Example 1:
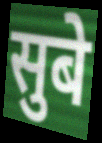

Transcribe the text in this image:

सुबे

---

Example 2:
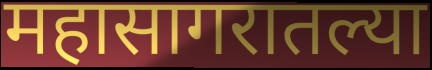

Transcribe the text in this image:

महासागरातल्या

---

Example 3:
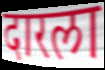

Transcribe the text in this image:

दारला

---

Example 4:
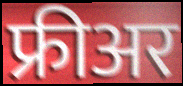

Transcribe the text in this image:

फ्रीअर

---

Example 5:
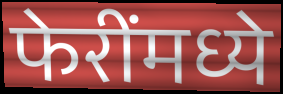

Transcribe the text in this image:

फेरींमध्ये